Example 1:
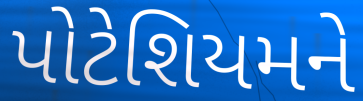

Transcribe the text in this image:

પોટેશિયમને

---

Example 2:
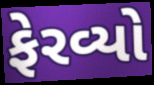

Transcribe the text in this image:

ફેરવ્યો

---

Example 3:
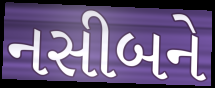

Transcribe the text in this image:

નસીબને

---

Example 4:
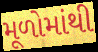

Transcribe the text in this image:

મૂળોમાંથી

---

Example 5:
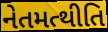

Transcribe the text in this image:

નેતમત્થીતિ